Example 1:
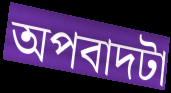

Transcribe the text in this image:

অপবাদটা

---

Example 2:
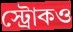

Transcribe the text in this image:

স্ট্রোকও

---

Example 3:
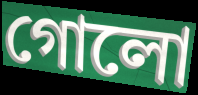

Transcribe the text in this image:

গোলো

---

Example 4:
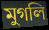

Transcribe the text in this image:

মুগলি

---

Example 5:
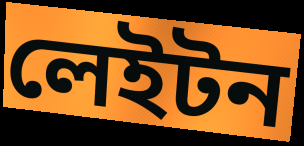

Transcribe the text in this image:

লেইটন